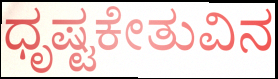
ಧೃಷ್ಟಕೇತುವಿನ